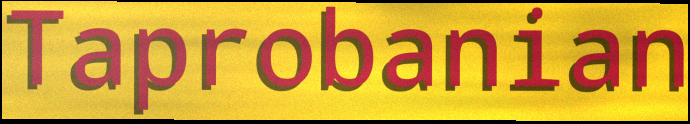
Taprobanian